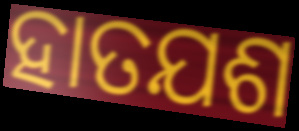
ହାତଯଶ